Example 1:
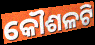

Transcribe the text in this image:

କୌଶଳଟି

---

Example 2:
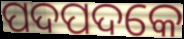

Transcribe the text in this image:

ପଦପଦକେ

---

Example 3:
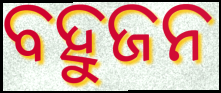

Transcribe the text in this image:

ବହୁଜନ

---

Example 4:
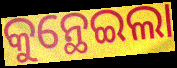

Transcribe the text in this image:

କୁନ୍ଥେଇଲା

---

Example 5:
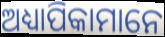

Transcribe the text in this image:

ଅଧ୍ୟାପିକାମାନେ